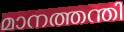
മാനത്തന്തി